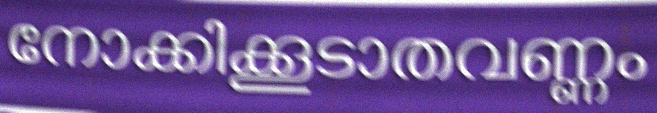
നോക്കിക്കൂടാതവണ്ണം